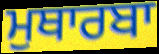
ਮੁਥਾਰਬਾ